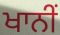
ਖਾਨੀਂ